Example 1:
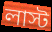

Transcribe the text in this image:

লাস্ট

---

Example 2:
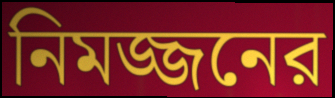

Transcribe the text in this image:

নিমজ্জনের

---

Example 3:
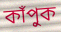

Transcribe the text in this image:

কাঁপুক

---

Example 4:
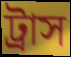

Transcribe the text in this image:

ট্রাস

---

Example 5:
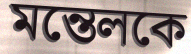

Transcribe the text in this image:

মন্তেলকে